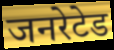
जनरेटेड